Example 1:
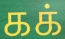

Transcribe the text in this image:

கக்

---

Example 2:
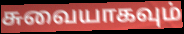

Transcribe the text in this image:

சுவையாகவும்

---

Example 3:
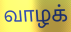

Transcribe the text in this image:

வாழக்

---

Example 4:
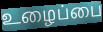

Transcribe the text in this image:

உழைப்பை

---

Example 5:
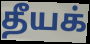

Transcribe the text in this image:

தீயக்